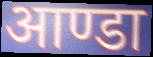
आण्डा